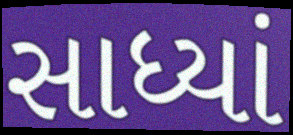
સાધ્યાં